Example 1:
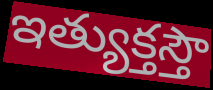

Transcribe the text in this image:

ఇత్యుక్తస్తౌ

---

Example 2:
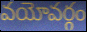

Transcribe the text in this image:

వయోవర్గం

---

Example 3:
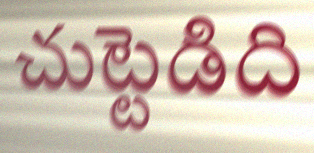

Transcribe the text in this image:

చుట్టెడిది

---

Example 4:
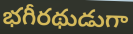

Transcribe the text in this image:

భగీరథుడుగా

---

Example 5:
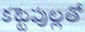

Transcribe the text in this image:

కట్టెపుల్లతో